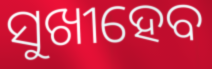
ସୁଖୀହେବ